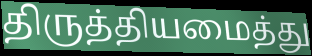
திருத்தியமைத்து